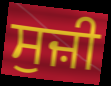
ਸੁਜ਼ੀ